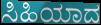
ಸಿಹಿಯಾದ